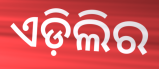
ଏଡ଼ିଲିର